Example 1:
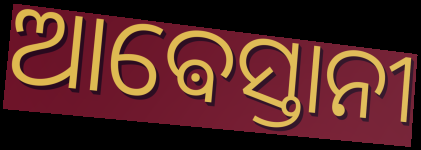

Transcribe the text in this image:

ଆଵେସ୍ତାନୀ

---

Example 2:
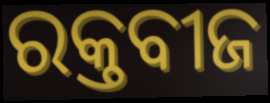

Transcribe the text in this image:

ରକ୍ତବୀଜ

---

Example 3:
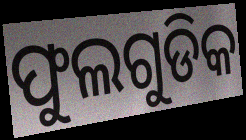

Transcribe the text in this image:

ଫୁଲଗୁଡିକ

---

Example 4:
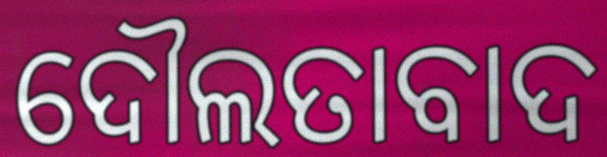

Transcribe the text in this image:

ଦୌଲତାବାଦ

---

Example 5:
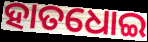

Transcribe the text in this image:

ହାତଧୋଇ